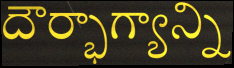
దౌర్భాగ్యాన్ని